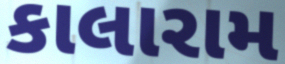
કાલારામ